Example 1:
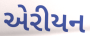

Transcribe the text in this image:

એરીયન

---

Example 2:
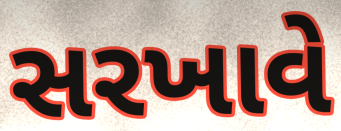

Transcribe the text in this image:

સરખાવે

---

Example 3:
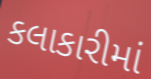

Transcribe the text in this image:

કલાકારીમાં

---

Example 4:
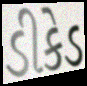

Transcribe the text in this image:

ડીકેડ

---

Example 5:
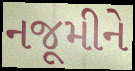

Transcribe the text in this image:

નજૂમીને